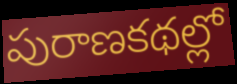
పురాణకథల్లో